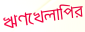
ঋণখেলাপির